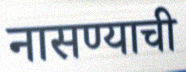
नासण्याची